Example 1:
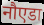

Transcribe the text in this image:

नौएडा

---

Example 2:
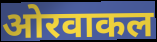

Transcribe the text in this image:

ओरवाकल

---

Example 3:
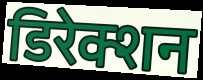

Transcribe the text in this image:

डिरेक्शन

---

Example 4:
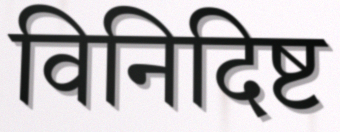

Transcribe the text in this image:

विनिदिष्ट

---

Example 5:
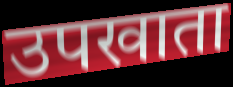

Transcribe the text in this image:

उपखाता